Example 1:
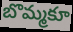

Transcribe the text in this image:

బొమ్మకూ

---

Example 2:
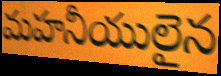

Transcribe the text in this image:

మహనీయులైన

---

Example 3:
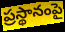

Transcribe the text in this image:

ప్రస్థానంపై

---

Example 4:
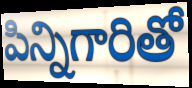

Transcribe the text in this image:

పిన్నిగారితో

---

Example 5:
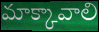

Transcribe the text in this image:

మాక్కావాలి